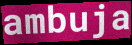
ambuja